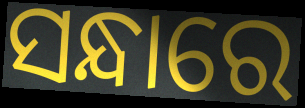
ସନ୍ଧାରେ